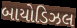
બાયોડિઝલ